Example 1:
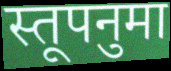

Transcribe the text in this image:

स्तूपनुमा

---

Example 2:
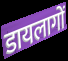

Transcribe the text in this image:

डायलागों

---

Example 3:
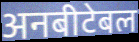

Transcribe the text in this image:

अनबीटेबल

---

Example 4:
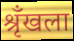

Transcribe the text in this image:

श्रृँखला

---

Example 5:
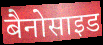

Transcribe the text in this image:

बैनोसाइड